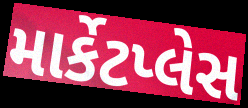
માર્કેટપ્લેસ